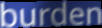
burden